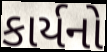
કાર્યનો